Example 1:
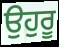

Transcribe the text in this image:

ਉਹੁਰੂ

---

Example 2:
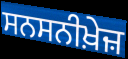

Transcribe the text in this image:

ਸਨਸਨੀਖ਼ੇਜ਼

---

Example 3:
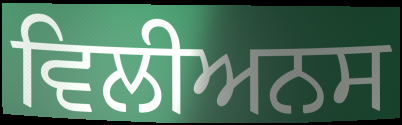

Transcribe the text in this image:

ਵਿਲੀਅਨਸ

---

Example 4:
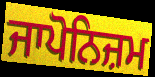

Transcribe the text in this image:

ਜਾਪੋਨਿਜ਼ਮ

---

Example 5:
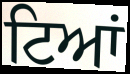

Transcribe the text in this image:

ਟਿਆਂ